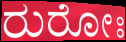
ರುರೋಃ